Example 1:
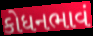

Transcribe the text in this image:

કોધનભાવં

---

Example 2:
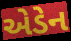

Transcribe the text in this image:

એડેન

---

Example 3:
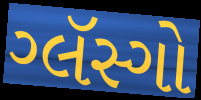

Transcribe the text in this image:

ગ્લૅસ્ગો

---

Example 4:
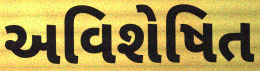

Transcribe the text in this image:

અવિશેષિત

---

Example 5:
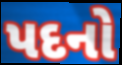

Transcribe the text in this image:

પદનો